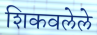
शिकवलेले